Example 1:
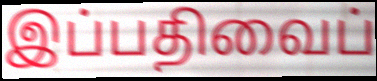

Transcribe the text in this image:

இப்பதிவைப்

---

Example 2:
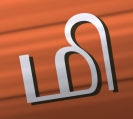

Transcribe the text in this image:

மி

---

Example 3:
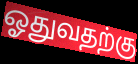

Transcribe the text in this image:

ஓதுவதற்கு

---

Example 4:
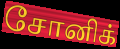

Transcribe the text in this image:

சோனிக்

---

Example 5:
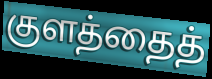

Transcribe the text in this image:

குளத்தைத்